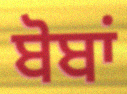
ਬੋਬਾਂ